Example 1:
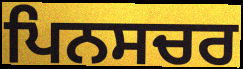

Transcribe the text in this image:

ਪਿਨਸਚਰ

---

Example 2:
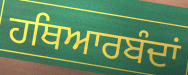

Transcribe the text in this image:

ਹਥਿਆਰਬੰਦਾਂ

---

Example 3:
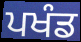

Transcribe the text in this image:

ਪਖੰਡ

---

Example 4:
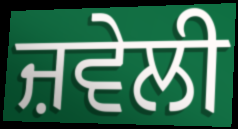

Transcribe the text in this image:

ਜ਼ਵੇਲੀ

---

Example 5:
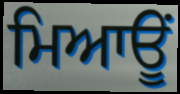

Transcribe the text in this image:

ਮਿਆਊਂ